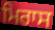
ਮਿਰਾਸ